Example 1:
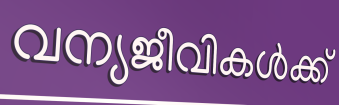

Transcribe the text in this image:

വന്യജീവികൾക്ക്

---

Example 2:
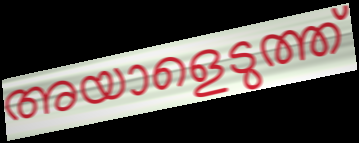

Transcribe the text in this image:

അയാളെടുത്ത്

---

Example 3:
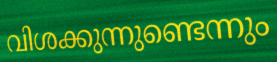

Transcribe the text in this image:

വിശക്കുന്നുണ്ടെന്നും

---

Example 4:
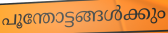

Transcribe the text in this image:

പൂന്തോട്ടങ്ങൾക്കും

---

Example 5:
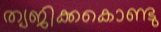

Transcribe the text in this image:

ത്യജിക്കകൊണ്ടു